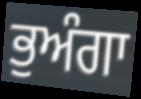
ਭੁਅੰਗਾ